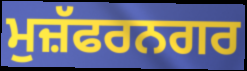
ਮੁਜ਼ੱਫਰਨਗਰ